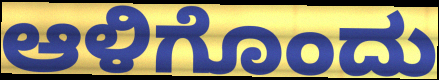
ಆಳಿಗೊಂದು